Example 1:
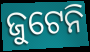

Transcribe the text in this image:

ଜୁଟେନି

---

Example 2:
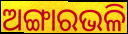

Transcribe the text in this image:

ଅଙ୍ଗାରଭଳି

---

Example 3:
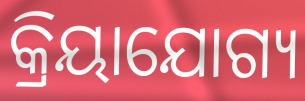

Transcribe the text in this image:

କ୍ରିୟାଯୋଗ୍ୟ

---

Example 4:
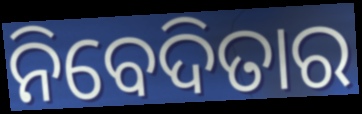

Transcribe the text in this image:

ନିବେଦିତାର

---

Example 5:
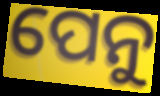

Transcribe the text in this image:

ପେନୁ